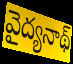
వైద్యనాథ్